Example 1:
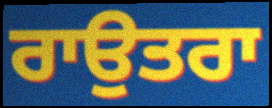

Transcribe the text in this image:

ਰਾਉਤਰਾ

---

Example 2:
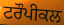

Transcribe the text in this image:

ਟਰੌਪੀਕਲ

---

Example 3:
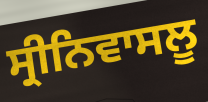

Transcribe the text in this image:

ਸ੍ਰੀਨਿਵਾਸਲੂ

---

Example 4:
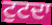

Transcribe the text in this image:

ਟੁਟਦਾ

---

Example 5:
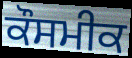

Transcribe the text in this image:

ਕੌਸਮੀਕ